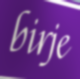
birje